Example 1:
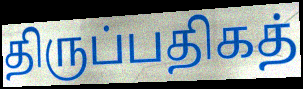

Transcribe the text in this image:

திருப்பதிகத்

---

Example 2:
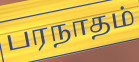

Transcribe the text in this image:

பரநாதம்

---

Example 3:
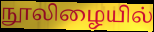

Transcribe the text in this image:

நூலிழையில்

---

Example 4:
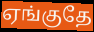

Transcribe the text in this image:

ஏங்குதே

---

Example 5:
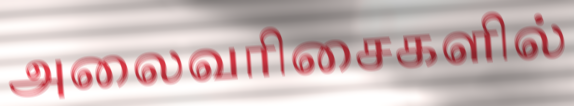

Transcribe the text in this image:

அலைவரிசைகளில்